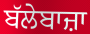
ਬੱਲੇਬਾਜ਼ਾ